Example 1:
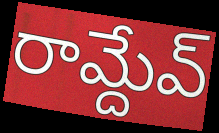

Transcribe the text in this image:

రామ్దేవ్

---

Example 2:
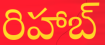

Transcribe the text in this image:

రిహాబ్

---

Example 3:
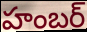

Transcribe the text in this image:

హంబర్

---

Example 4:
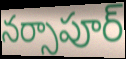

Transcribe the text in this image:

నర్సాపూర్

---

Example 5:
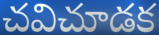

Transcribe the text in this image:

చవిచూడక